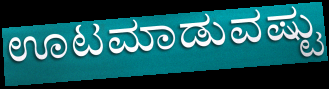
ಊಟಮಾಡುವಷ್ಟು